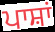
ਪਾਸ਼ਾਂ